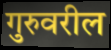
गुरुवरील